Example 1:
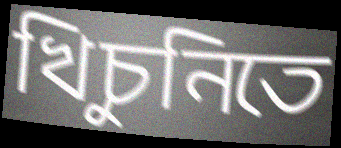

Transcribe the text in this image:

খিচুনিতে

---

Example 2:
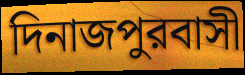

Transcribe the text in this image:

দিনাজপুরবাসী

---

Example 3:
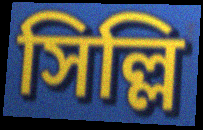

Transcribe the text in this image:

সিল্লি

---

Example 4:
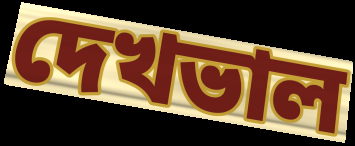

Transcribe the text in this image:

দেখভাল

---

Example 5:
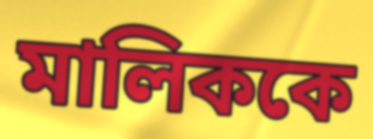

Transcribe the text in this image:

মালিককে